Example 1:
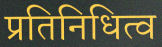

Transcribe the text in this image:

प्रतिनिधित्व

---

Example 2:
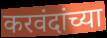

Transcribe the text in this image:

करवंदांच्या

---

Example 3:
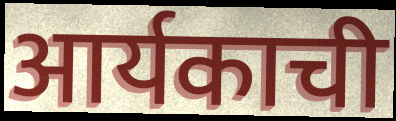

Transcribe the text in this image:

आर्यकाची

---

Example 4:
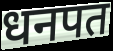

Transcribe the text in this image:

धनपत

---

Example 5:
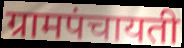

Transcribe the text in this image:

ग्रामपंचायती